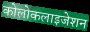
कोलोकलाइजेशन